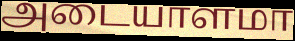
அடையாளமா